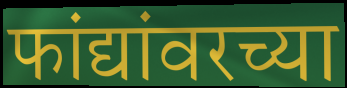
फांद्यांवरच्या